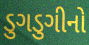
ડુગડુગીનો